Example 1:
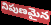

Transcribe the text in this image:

నిపుణమైన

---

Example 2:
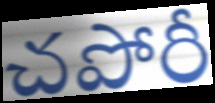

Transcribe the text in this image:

చపోరీ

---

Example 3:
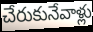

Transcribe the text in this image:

చేరుకునేవాళ్లు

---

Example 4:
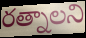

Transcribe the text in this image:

రత్నాలని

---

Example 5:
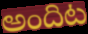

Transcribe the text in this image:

అందిట